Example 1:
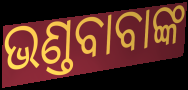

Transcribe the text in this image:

ଭଣ୍ଡବାବାଙ୍କ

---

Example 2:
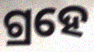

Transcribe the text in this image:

ଗ୍ରହେ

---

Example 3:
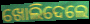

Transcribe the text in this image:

ଖୋଲିଦେଲେ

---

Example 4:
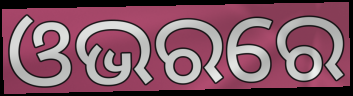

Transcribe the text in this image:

ଓଭରରେ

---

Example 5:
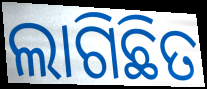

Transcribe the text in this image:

ଲାଗିଛିତ